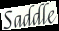
Saddle